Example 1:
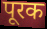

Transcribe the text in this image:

पूरक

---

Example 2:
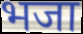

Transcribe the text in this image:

भजा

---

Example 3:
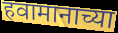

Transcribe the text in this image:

हवामानाच्या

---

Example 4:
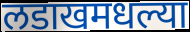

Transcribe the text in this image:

लडाखमधल्या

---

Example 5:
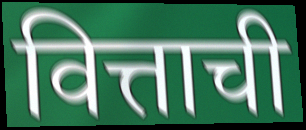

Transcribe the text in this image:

वित्ताची